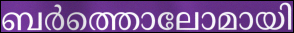
ബർത്തൊലോമായി